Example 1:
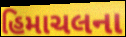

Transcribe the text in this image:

હિમાચલના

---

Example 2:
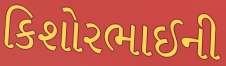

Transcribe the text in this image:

કિશોરભાઈની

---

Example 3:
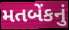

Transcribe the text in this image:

મતબેંકનું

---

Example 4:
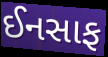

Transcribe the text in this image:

ઈનસાફ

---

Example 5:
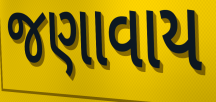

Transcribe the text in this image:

જણાવાય